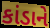
કાંડાને